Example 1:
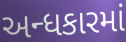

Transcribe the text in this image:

અન્ધકારમાં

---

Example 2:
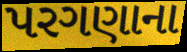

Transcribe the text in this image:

પરગણાના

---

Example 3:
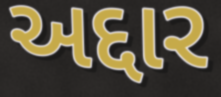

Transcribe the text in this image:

અદ્દાર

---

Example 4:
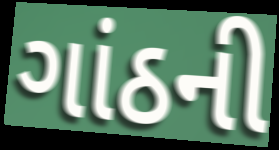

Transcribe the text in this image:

ગાંઠની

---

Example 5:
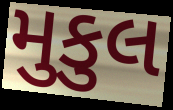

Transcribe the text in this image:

મુકુલ